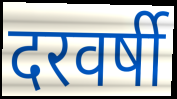
दरवर्षी